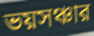
ভয়সঞ্চার